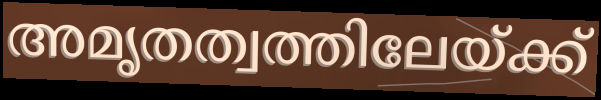
അമൃതത്വത്തിലേയ്ക്ക്